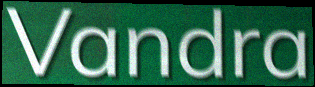
Vandra